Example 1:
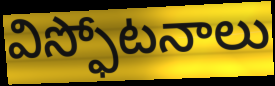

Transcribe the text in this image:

విస్ఫోటనాలు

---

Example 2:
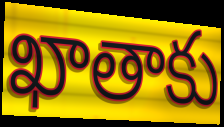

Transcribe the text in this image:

ఖాతాకు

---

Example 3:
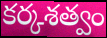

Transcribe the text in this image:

కర్కశత్వం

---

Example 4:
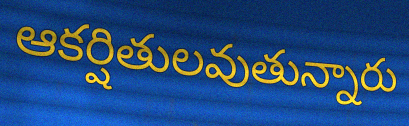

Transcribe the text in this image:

ఆకర్షితులవుతున్నారు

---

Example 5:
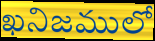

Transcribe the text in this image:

ఖనిజములో